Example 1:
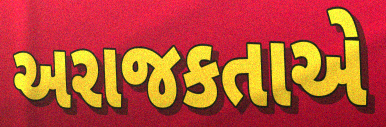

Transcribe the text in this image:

અરાજકતાએ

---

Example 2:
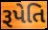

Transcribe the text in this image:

રૂપેતિ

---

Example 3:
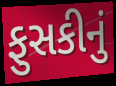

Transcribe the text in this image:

ફુસકીનું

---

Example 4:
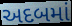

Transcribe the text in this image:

અદબમાં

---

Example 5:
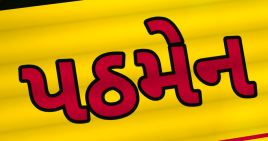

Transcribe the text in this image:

પઠમેન